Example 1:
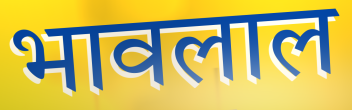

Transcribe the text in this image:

भावलाल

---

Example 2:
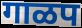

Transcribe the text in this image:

गाळप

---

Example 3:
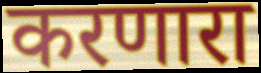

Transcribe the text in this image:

करणारा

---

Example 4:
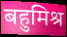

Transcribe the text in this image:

बहुमिश्र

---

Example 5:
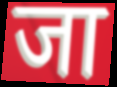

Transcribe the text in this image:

जा